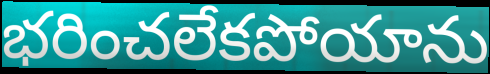
భరించలేకపోయాను